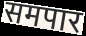
समपार